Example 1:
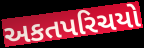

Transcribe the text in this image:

અકતપરિચયો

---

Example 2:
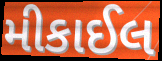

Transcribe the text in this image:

મીકાઈલ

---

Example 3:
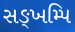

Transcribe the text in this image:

સઙ્ખમ્પિ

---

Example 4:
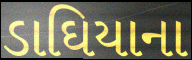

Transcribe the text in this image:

ડાઘિયાના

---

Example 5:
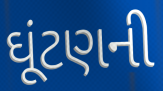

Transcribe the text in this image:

ઘૂંટણની